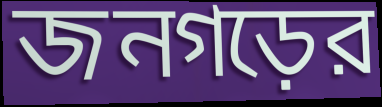
জনগড়ের